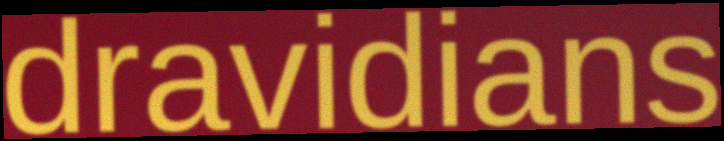
dravidians